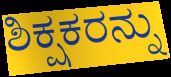
ಶಿಕ್ಷಕರನ್ನು